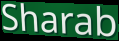
Sharab